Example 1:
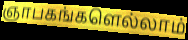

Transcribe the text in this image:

ஞாபகங்களெல்லாம்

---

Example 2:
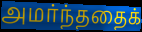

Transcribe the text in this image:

அமர்ந்ததைக்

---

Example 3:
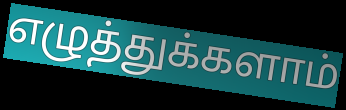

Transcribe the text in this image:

எழுத்துக்களாம்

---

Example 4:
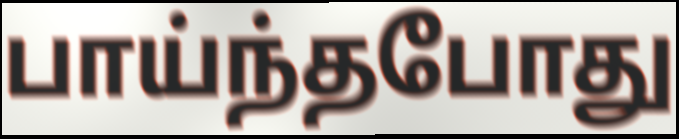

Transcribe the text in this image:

பாய்ந்தபோது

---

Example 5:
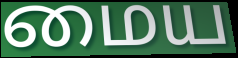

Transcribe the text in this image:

மைய